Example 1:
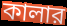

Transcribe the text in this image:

কালার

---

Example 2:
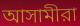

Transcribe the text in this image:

আসামীরা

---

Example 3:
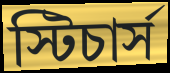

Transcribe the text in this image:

স্টিচার্স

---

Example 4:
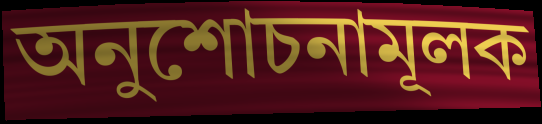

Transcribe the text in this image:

অনুশোচনামূলক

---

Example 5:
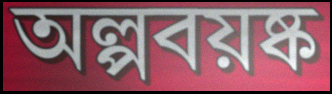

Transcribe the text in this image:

অল্পবয়ষ্ক